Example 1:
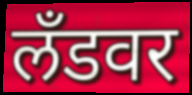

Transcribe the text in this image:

लँडवर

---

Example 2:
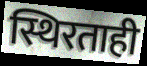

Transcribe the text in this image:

स्थिरताही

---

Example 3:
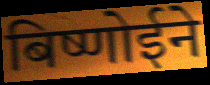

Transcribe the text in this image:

बिष्णोईने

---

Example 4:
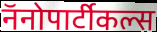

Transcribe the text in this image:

नॅनोपार्टीकल्स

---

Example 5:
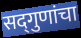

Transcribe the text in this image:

सद्‍गुणांचा